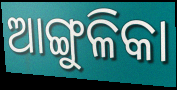
ଆଙ୍ଗୁଳିକା